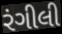
રંગીલી